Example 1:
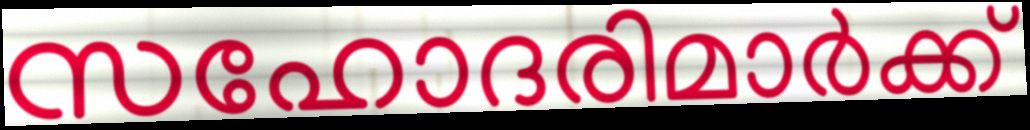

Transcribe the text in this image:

സഹോദരിമാർക്ക്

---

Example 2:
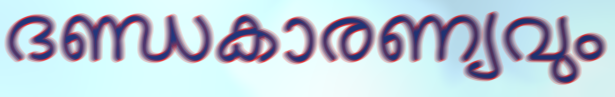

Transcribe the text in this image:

ദണ്ഡകാരണ്യവും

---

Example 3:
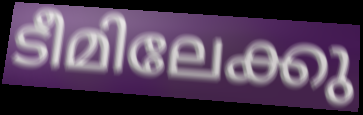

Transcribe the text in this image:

ടീമിലേക്കു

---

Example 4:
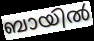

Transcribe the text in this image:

ബായിൽ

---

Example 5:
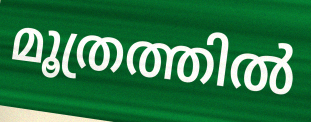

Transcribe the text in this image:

മൂത്രത്തിൽ